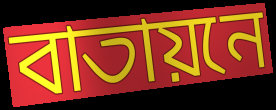
বাতায়নে